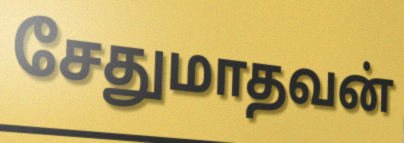
சேதுமாதவன்